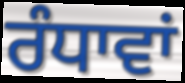
ਰੰਧਾਵਾਂ